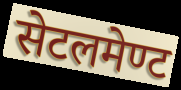
सेटलमेण्ट